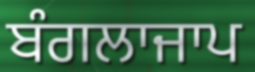
ਬੰਗਲਾਜਾਪ